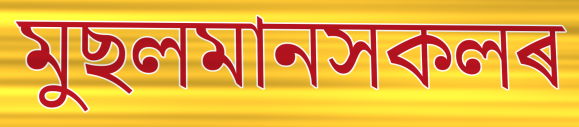
মুছলমানসকলৰ